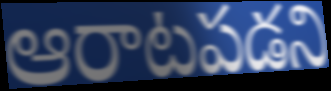
ఆరాటపడని